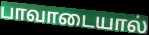
பாவாடையால்